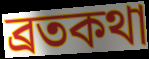
ব্রতকথা